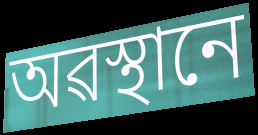
অৱস্থানে